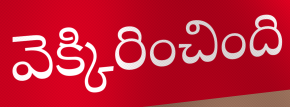
వెక్కిరించింది